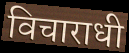
विचाराधी